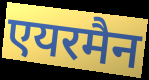
एयरमैन